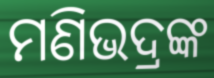
ମଣିଭଦ୍ରଙ୍କ